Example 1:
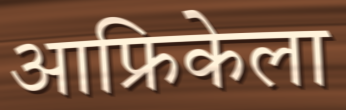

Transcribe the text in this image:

आफ्रिकेला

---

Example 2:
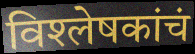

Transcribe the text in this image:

विश्लेषकांचं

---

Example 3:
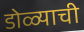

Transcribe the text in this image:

डोळ्याची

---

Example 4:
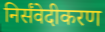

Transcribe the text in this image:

निर्संवेदीकरण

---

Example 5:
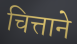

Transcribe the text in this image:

चित्ताने